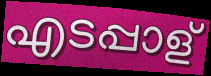
എടപ്പാള്